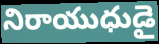
నిరాయుధుడై